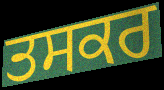
ਤਸਕਰ